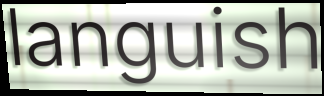
languish